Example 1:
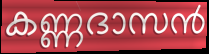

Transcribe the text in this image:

കണ്ണദാസൻ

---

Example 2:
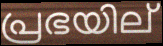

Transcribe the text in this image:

പ്രഭയില്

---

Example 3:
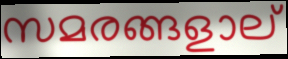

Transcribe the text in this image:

സമരങ്ങളാല്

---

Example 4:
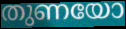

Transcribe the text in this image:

തുണയോ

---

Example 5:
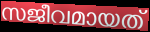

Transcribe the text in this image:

സജീവമായത്